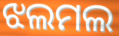
ଝଲମଲ